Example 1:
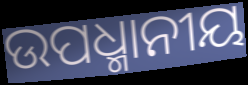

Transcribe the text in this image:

ଉପଧ୍ମାନୀୟ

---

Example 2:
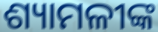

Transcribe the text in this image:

ଶ୍ୟାମଳୀଙ୍କ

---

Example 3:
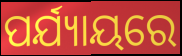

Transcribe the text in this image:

ପର୍ଯ୍ଯାୟରେ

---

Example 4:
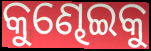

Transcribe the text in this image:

କୁଣ୍ଢେଇକୁ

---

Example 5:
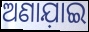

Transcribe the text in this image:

ଅଣାଯ଼ାଇ